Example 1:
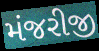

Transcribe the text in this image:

મંજરીજી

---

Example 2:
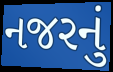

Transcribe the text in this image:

નજરનું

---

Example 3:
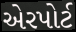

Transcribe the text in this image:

એરપોર્ટ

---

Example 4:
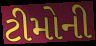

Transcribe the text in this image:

ટીમોની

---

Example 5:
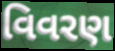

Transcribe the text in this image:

વિવરણ